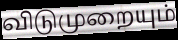
விடுமுறையும்